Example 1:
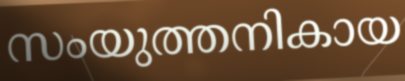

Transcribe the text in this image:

സംയുത്തനികായ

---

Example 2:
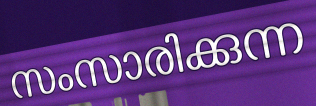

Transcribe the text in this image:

സംസാരിക്കുന്ന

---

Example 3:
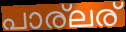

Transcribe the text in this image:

പാര്ലര്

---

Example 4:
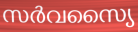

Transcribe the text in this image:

സർവസ്യൈ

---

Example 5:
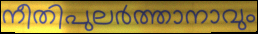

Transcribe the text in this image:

നീതിപുലർത്താനാവും